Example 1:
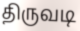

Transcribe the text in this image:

திருவடி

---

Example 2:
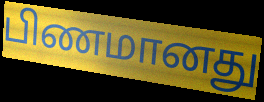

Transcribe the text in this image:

பிணமானது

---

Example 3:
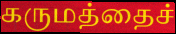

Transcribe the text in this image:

கருமத்தைச்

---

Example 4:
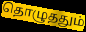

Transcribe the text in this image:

தொழுததும்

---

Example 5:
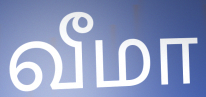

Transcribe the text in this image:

வீமா